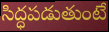
సిద్ధపడుతుంటే